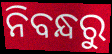
ନିବନ୍ଧରୁ